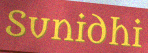
Sunidhi